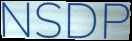
NSDP